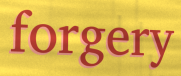
forgery